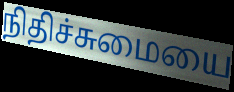
நிதிச்சுமையை